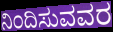
ನಿಂದಿಸುವವರ